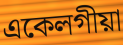
একেলগীয়া